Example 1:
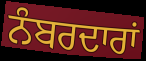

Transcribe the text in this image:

ਨੰਬਰਦਾਰਾਂ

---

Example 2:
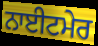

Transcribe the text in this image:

ਨਾਈਟਮੇਰ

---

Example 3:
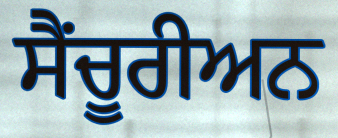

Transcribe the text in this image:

ਸੈਂਚੂਰੀਅਨ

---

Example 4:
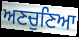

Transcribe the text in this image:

ਅਣਚੁਣਿਆ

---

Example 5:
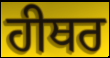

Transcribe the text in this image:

ਹੀਥਰ